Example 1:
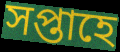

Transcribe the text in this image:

সপ্তাহে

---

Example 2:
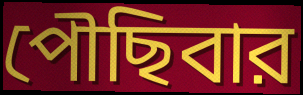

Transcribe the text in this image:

পৌছিবার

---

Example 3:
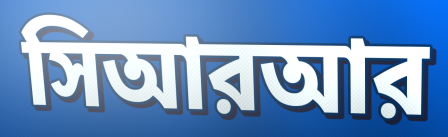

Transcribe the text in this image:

সিআরআর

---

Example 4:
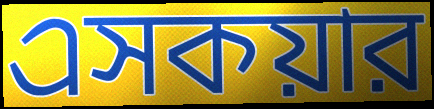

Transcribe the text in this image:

এসকয়ার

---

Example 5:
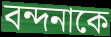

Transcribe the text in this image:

বন্দনাকে